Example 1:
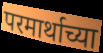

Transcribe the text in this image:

परमार्थाच्या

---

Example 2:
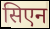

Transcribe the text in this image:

सिएन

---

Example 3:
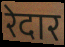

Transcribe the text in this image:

रेदार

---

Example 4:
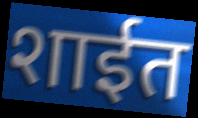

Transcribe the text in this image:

शाईत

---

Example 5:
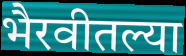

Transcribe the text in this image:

भैरवीतल्या